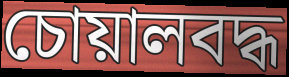
চোয়ালবদ্ধ